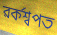
ৱৰ্কশ্বপত